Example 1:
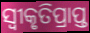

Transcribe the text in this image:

ସ୍ୱୀକୃତିପ୍ରାପ୍ତ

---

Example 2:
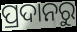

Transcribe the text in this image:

ପ୍ରଦାନରୁ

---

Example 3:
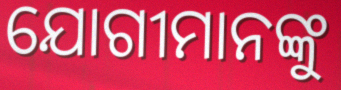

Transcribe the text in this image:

ଯୋଗୀମାନଙ୍କୁ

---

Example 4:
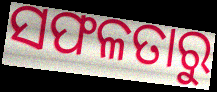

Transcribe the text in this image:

ସଫଳତାରୁ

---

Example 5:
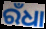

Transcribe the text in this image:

ରଁଧା